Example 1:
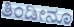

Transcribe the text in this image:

ತಿಂಡೀನೂ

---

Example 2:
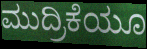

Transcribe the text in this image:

ಮುದ್ರಿಕೆಯೂ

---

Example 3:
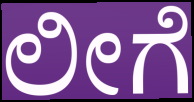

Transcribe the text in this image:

ಲೀಗೆ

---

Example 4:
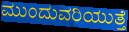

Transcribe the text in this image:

ಮುಂದುವರಿಯುತ್ತೆ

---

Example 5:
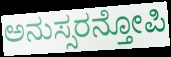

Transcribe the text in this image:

ಅನುಸ್ಸರನ್ತೋಪಿ